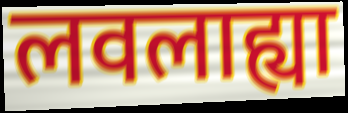
लवलाह्या